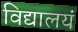
विद्यालयं